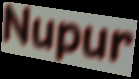
Nupur